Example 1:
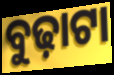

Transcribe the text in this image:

ବୁଢ଼ାଟା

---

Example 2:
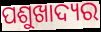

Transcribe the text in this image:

ପଶୁଖାଦ୍ୟର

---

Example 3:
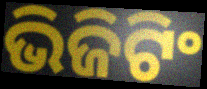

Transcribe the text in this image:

ଭିଜିଟିଂ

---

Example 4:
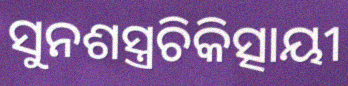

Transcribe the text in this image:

ସୁନଶସ୍ତ୍ରଚିକିତ୍ସାୟୀ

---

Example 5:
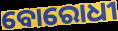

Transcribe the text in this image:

ବୋରୋଧୀ